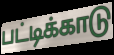
பட்டிக்காடு